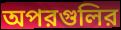
অপরগুলির